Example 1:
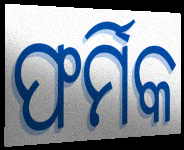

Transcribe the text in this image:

ଫର୍ମିକ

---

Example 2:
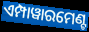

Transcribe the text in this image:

ଏମ୍ପାୱାରମେଣ୍ଟ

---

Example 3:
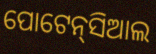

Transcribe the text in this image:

ପୋଟେନ୍‌ସିଆଲ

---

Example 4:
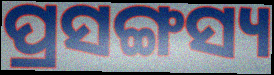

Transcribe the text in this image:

ପ୍ରସଙ୍ଗସ୍ୟ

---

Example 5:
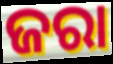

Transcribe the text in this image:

ଜରା